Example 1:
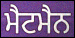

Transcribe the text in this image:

ਮੈਟਮੈਨ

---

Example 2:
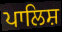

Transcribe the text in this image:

ਪਾਲਿਸ਼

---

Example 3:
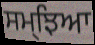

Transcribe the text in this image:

ਸਮ੍ਝਿਆ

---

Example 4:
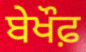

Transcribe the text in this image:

ਬੇਖੌਫ਼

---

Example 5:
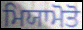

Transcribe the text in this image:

ਮਿਯਾਮੋਤੋ